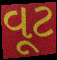
વૂટ